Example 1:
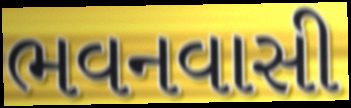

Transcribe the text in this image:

ભવનવાસી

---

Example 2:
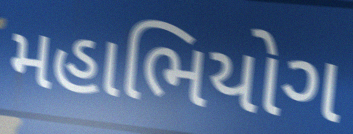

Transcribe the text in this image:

મહાભિયોગ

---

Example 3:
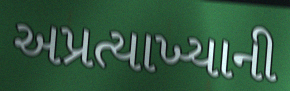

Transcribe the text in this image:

અપ્રત્યાખ્યાની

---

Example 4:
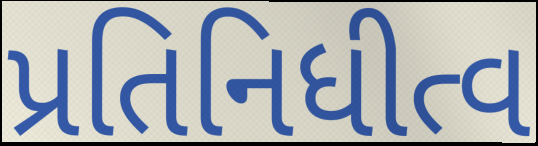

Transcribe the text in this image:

પ્રતિનિધીત્વ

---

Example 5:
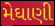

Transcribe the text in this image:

મેઘાણી